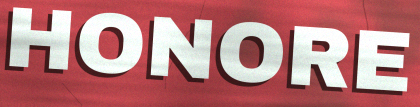
HONORE